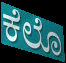
ಕೆಲೊ